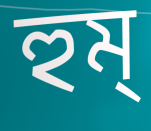
হুম্